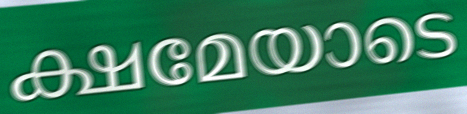
ക്ഷമേയാടെ